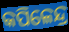
କପିଳେନ୍ଦ୍ର